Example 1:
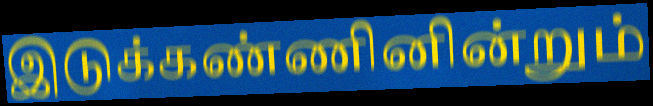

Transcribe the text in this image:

இடுக்கண்ணினின்றும்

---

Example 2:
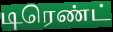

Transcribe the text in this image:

டிரெண்ட்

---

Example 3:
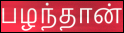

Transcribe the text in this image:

பழந்தான்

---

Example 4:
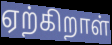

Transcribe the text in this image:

ஏற்கிறாள்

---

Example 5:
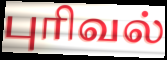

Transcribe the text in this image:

புரிவல்